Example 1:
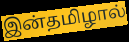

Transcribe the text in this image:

இன்தமிழால்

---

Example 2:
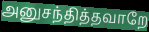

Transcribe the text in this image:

அனுசந்தித்தவாறே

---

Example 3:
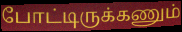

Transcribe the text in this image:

போட்டிருக்கணும்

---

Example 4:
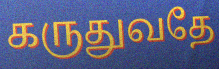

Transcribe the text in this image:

கருதுவதே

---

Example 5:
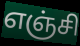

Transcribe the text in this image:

எஞ்சி